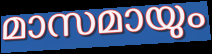
മാസമായും